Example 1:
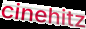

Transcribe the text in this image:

cinehitz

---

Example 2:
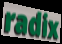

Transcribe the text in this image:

radix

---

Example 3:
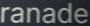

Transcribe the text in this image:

ranade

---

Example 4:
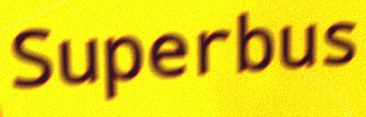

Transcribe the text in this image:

Superbus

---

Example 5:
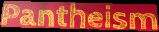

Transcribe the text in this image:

Pantheism